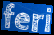
feri